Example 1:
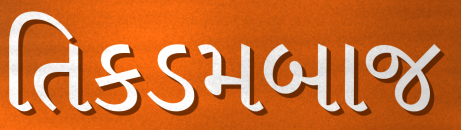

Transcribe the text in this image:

તિકડમબાજ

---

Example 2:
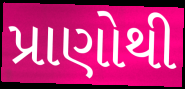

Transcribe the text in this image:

પ્રાણોથી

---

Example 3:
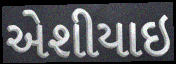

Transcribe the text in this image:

એશીયાઇ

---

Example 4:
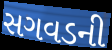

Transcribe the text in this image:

સગવડની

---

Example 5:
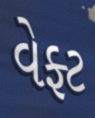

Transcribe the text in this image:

વેફ્ટ